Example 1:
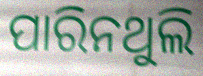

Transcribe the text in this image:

ପାରିନଥୁଲି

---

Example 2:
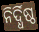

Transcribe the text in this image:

ନିର୍ଦ୍ଧିଷ୍ଠ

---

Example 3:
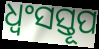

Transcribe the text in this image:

ଧ୍ୱଂସସ୍ତୂପ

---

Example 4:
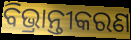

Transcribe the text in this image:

ବିଭ୍ରାନ୍ତୀକରଣ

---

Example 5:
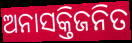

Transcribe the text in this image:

ଅନାସକ୍ତିଜନିତ